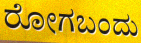
ರೋಗಬಂದು